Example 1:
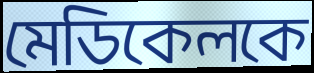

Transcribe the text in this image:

মেডিকেলকে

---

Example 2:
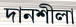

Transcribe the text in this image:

দানশীলা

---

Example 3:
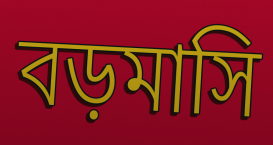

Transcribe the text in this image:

বড়মাসি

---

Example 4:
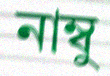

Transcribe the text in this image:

নাম্বু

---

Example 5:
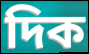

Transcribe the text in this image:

দিক